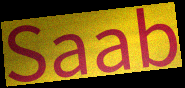
Saab